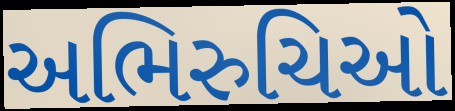
અભિરુચિઓ